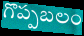
గొప్పబలం